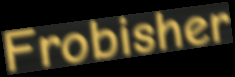
Frobisher